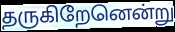
தருகிறேனென்று